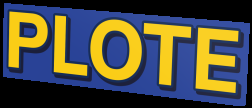
PLOTE